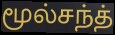
மூல்சந்த்